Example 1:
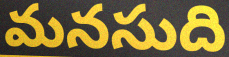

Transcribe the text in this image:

మనసుది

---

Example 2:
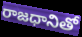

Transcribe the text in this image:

రాజధానితో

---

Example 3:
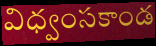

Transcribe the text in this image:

విధ్వంసకాండ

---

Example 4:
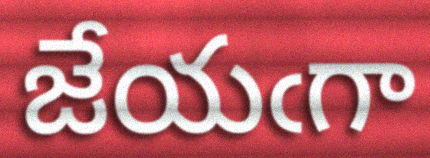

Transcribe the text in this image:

జేయఁగా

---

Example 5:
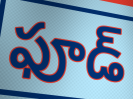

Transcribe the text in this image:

ఫూడ్